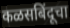
कळसबिंदूचा